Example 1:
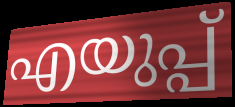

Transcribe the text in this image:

എയുപ്പ്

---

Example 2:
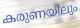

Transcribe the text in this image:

കരുണയിലും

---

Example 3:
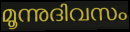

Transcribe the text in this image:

മൂന്നുദിവസം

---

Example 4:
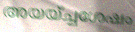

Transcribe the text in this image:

അയയ്ച്ചശേഷം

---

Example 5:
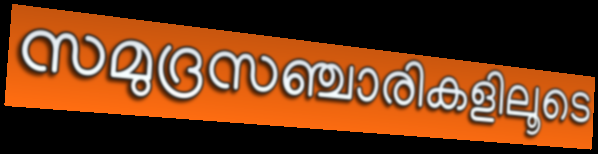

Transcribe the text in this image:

സമുദ്രസഞ്ചാരികളിലൂടെ